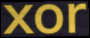
xor